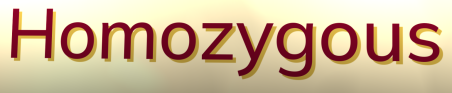
Homozygous